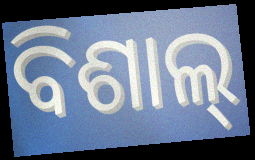
ବିଶାଲ୍